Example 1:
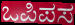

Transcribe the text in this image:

ಒಪಿಪಸ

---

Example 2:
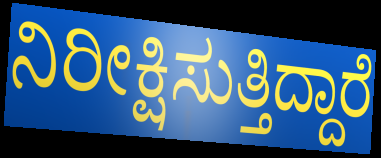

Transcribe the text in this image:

ನಿರೀಕ್ಷಿಸುತ್ತಿದ್ದಾರೆ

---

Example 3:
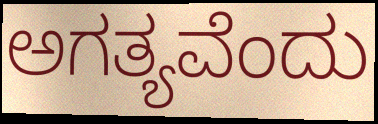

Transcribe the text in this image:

ಅಗತ್ಯವೆಂದು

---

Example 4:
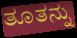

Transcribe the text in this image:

ತೂತನ್ನು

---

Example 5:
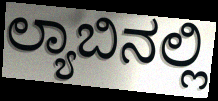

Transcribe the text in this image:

ಲ್ಯಾಬಿನಲ್ಲಿ